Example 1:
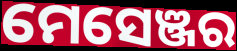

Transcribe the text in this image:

ମେସେଞ୍ଜର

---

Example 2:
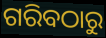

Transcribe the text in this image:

ଗରିବଠାରୁ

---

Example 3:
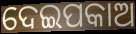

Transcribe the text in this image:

ଦେଇପକାଅ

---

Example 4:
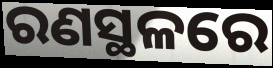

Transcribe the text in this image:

ରଣସ୍ଥଳରେ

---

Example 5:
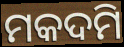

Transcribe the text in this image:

ମକଦମି